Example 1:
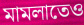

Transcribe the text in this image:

মামলাতেও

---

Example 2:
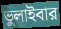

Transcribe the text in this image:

ভুলাইবার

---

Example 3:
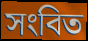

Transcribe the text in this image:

সংবিত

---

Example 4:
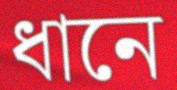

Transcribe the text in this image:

ধানে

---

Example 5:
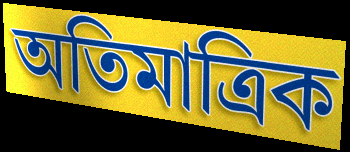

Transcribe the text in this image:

অতিমাত্রিক